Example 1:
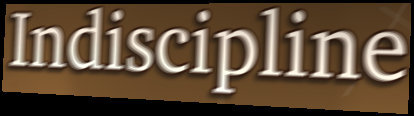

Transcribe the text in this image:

Indiscipline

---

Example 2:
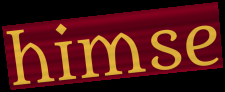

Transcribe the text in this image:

himse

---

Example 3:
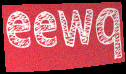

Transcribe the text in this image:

eewq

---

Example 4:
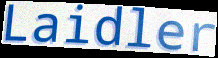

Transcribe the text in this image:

Laidler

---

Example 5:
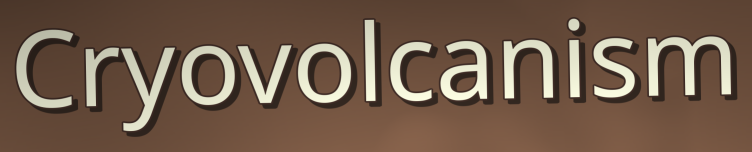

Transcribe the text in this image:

Cryovolcanism